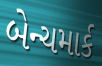
બેન્ચમાર્ક